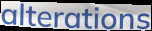
alterations